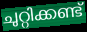
ചുറ്റിക്കണ്ട്